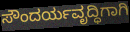
ಸೌಂದರ್ಯವೃದ್ಧಿಗಾಗಿ